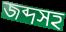
জব্দসহ